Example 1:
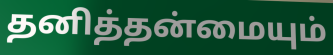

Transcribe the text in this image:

தனித்தன்மையும்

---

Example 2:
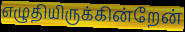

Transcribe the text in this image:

எழுதியிருக்கின்றேன்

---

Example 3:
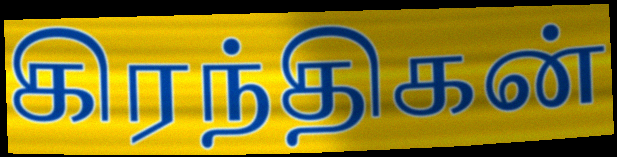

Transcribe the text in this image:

கிரந்திகன்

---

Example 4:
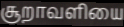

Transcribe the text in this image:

சூறாவளியை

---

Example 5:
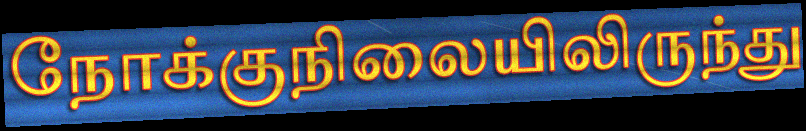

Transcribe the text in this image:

நோக்குநிலையிலிருந்து